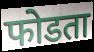
फोडता